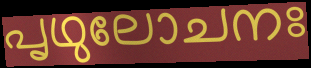
പൃഥുലോചനഃ